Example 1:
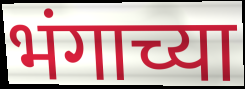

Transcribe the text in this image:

भंगाच्या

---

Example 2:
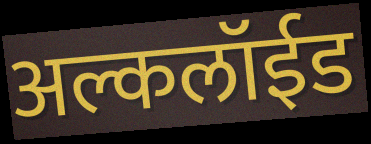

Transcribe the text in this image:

अल्कलॉईड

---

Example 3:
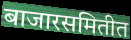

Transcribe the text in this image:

बाजारसमितीत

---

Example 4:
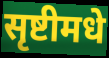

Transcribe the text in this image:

सृष्टीमधे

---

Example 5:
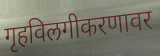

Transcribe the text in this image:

गृहविलगीकरणावर